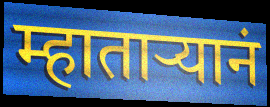
म्हातार्‍यानं